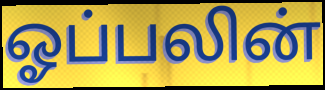
ஓப்பலின்